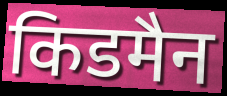
किडमैन